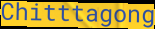
Chitttagong